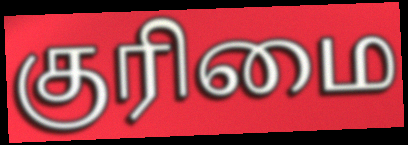
குரிமை